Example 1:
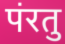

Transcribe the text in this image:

पंरतु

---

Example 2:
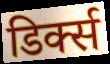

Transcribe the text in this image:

डिर्क्स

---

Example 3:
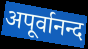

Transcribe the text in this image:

अपूर्वानन्द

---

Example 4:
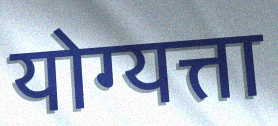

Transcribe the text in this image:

योग्यत्ता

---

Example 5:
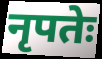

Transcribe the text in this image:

नृपतेः